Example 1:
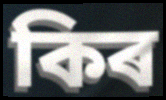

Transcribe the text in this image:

কিৰ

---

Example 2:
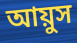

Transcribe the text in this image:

আয়ুস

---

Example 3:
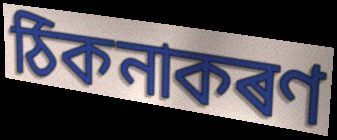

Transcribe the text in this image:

ঠিকনাকৰণ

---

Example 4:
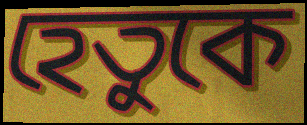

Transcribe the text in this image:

হেতুকে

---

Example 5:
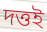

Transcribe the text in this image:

দত্তই